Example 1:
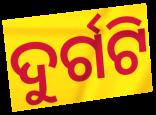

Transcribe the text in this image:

ଦୁର୍ଗଟି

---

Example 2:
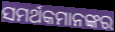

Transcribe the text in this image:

ସମର୍ଥକମାନଙ୍କର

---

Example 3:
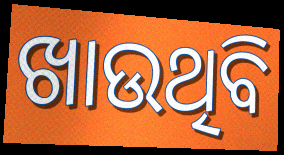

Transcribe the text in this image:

ଖାଉଥିବି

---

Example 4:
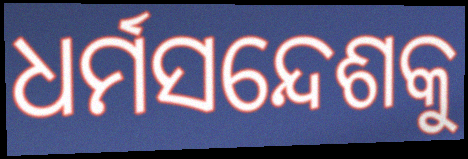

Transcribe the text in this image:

ଧର୍ମସନ୍ଦେଶକୁ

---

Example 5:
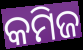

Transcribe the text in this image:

କମିଜ